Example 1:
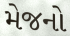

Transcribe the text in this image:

મેજનો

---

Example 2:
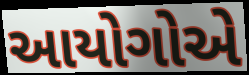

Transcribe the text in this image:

આયોગોએ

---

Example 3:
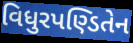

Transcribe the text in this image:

વિધુરપણ્ડિતેન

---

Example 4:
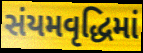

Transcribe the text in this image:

સંયમવૃદ્ધિમાં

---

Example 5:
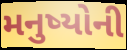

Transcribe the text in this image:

મનુષ્યોની